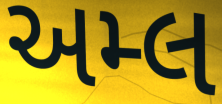
અમ્લ